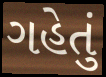
ગહેતું